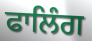
ਫਾਲਿੰਗ